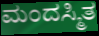
ಮಂದಸ್ಮಿತ